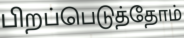
பிறப்பெடுத்தோம்